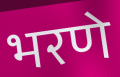
भरणे